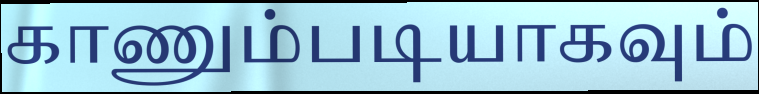
காணும்படியாகவும்